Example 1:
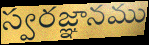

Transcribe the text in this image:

స్వరజ్ఞానము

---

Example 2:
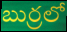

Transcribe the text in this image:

బుర్రలో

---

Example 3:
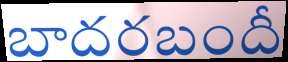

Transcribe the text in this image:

బాదరబందీ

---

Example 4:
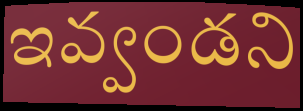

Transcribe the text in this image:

ఇవ్వండని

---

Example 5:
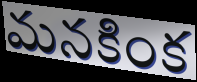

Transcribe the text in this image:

మనకింక